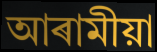
আৰামীয়া